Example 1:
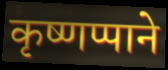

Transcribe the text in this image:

कृष्णप्पाने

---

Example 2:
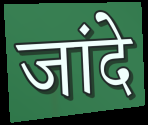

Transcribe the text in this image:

जांदे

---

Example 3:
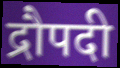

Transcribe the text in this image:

द्रौपदी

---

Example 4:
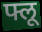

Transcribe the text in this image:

फ्लू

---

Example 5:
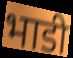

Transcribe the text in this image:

भाडी